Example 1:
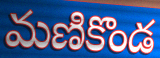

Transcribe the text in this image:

మణికొండ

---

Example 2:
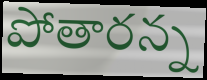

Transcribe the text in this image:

పోతారన్న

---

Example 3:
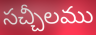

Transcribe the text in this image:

సచ్చీలము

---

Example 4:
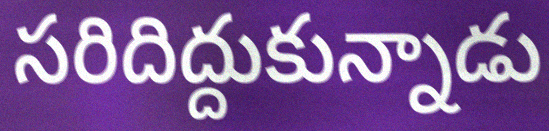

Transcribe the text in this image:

సరిదిద్దుకున్నాడు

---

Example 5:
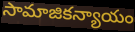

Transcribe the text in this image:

సామాజికన్యాయం